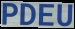
PDEU